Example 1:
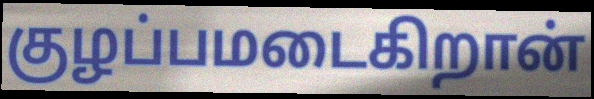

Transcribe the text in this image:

குழப்பமடைகிறான்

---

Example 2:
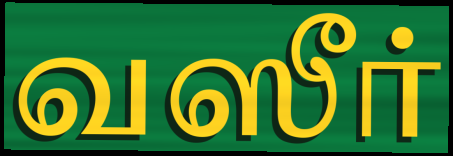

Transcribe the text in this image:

வஸீர்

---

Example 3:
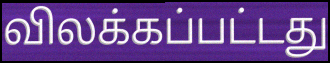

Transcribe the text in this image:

விலக்கப்பட்டது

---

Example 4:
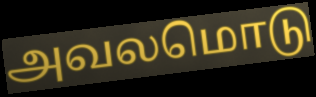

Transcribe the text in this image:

அவலமொடு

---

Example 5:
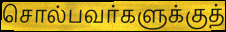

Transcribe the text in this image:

சொல்பவர்களுக்குத்